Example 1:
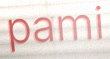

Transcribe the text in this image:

pami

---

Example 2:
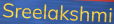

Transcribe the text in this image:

Sreelakshmi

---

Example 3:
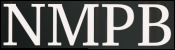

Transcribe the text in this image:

NMPB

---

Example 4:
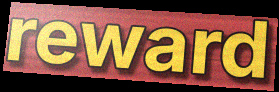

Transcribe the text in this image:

reward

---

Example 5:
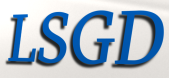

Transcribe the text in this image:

LSGD